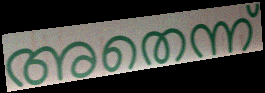
അതെന്ന്